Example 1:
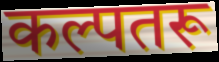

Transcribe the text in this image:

कल्पतरू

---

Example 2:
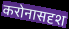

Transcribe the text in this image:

करोनासदृश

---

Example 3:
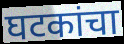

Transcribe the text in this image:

घटकांचा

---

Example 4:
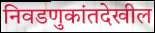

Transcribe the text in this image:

निवडणुकांतदेखील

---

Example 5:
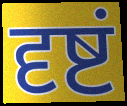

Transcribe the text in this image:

दृष्टं